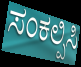
ಸಂಕಲ್ಪಿಸಿ